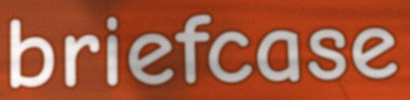
briefcase